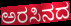
ಅರಸಿನದ